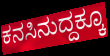
ಕನಸಿನುದ್ದಕ್ಕೂ